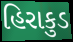
હિરાકુડ